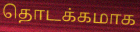
தொடக்கமாக